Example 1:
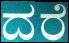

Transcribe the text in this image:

ದರೆ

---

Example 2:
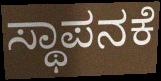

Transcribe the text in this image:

ಸ್ಥಾಪನಕೆ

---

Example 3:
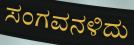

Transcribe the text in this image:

ಸಂಗವನಳಿದು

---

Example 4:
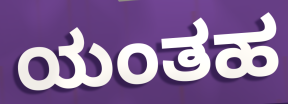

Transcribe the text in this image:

ಯಂತಹ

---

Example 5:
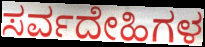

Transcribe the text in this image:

ಸರ್ವದೇಹಿಗಳ